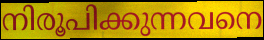
നിരൂപിക്കുന്നവനെ